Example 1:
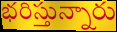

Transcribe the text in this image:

భరిస్తున్నారు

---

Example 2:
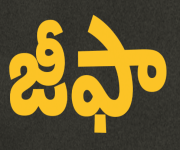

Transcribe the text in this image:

జీఫా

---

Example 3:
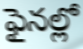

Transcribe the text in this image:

ఫైనల్లో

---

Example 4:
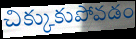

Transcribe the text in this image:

చిక్కుకుపోవడం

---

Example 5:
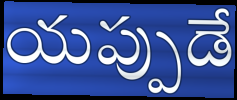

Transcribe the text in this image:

యప్పుడే